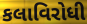
કલાવિરોધી